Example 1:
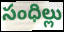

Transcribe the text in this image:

సంధిల్లు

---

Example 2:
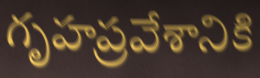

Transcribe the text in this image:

గృహప్రవేశానికి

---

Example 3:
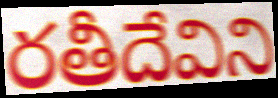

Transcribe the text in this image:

రతీదేవిని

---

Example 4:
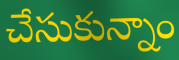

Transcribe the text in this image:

చేసుకున్నాం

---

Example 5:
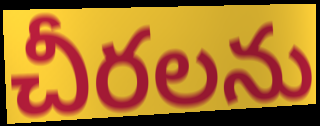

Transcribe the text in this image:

చీరలను